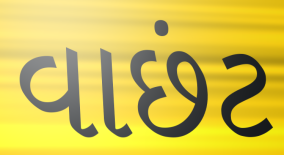
વાછંટ